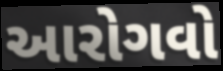
આરોગવો